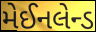
મેઈનલેન્ડ